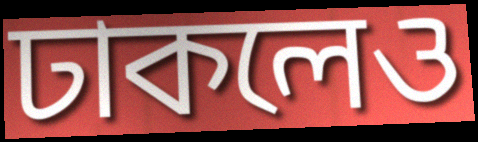
ঢাকলেও